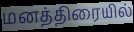
மனத்திரையில்